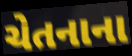
ચેતનાના